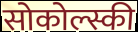
सोकोल्स्की